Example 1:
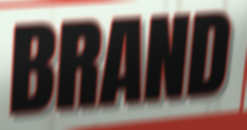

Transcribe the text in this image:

BRAND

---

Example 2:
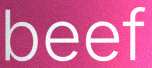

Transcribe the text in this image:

beef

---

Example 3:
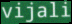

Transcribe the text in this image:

vijali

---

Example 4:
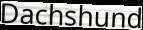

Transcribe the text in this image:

Dachshund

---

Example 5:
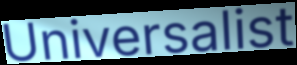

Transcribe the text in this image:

Universalist